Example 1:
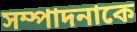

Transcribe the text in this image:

সম্পাদনাকে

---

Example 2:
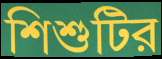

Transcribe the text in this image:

শিশুটির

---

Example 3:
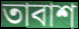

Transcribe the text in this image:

তাবাশ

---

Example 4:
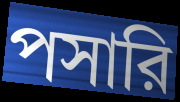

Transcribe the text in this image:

পসারি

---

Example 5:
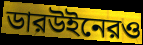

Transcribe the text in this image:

ডারউইনেরও